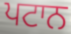
ਪਟਾਨ